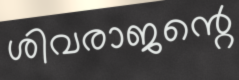
ശിവരാജന്റെ